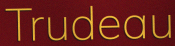
Trudeau